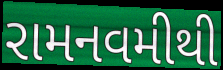
રામનવમીથી